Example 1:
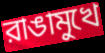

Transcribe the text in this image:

রাঙামুখে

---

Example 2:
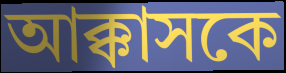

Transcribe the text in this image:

আক্কাসকে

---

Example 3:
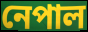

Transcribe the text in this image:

নেপাল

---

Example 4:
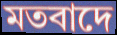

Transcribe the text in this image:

মতবাদে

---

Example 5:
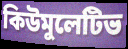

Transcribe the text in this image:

কিউমুলেটিভ